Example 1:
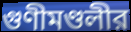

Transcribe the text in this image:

গুণীমণ্ডলীর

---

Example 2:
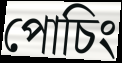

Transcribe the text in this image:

পোচিং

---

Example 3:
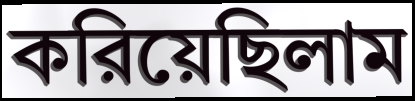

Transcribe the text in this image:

করিয়েছিলাম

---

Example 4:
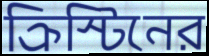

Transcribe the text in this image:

ক্রিস্টিনের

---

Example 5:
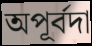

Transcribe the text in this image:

অপূর্বদা